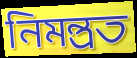
নিমন্ত্রত